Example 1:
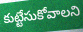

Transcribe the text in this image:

కుట్టేసుకోవాలని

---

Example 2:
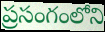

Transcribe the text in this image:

ప్రసంగంలోని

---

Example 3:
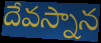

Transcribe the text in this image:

దేవస్నాన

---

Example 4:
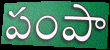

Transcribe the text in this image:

పంపా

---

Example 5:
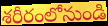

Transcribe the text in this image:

శరీరంలోనుండి